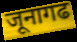
जूनागढ